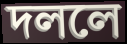
দললে